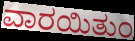
ವಾರಯಿತುಂ